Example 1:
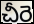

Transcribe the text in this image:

చీరె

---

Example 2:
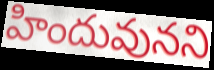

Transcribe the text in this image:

హిందువునని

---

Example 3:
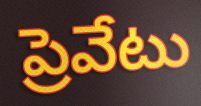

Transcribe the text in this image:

ప్రెవేటు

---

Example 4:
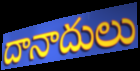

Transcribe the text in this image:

దానాదులు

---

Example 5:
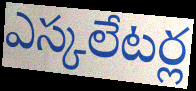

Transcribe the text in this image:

ఎస్కలేటర్ల